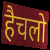
हैचलो